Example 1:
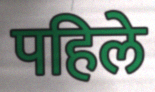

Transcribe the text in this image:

पहिले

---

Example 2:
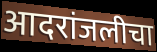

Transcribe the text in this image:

आदरांजलीचा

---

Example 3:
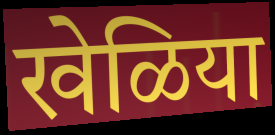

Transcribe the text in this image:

खेळिया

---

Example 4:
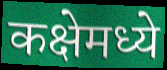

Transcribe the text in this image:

कक्षेमध्ये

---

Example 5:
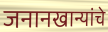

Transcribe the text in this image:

जनानखान्यांचे